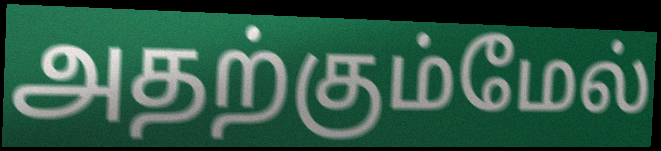
அதற்கும்மேல்